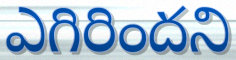
ఎగిరిందని